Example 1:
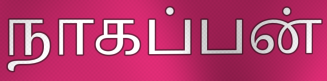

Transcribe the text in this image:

நாகப்பன்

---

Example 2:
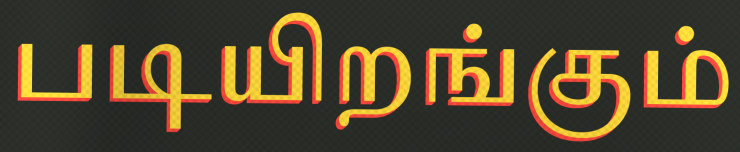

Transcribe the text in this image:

படியிறங்கும்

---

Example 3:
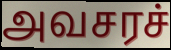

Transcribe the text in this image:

அவசரச்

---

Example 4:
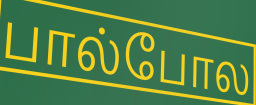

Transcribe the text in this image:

பால்போல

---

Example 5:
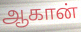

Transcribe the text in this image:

ஆகான்